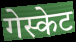
गेस्केट